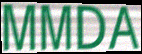
MMDA